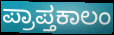
ಪ್ರಾಪ್ತಕಾಲಂ